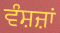
ਵੰਸ਼ਜ਼ਾਂ